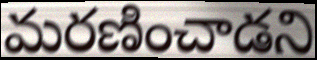
మరణించాడని